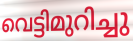
വെട്ടിമുറിച്ചു